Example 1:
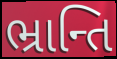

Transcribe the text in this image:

ભ્રાન્તિ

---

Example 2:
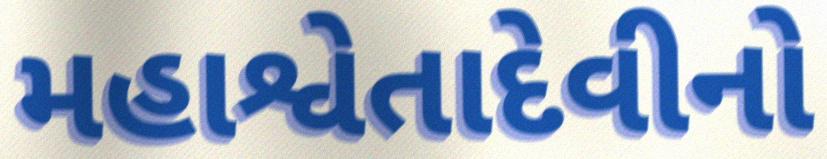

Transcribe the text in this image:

મહાશ્વેતાદેવીનો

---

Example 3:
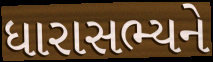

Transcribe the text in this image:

ધારાસભ્યને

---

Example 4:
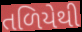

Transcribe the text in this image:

તળિયેથી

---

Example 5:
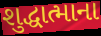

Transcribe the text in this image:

શુદ્ધાત્માના